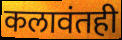
कलावंतही